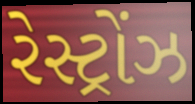
રેસ્ટ્રોંઝ